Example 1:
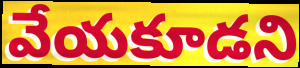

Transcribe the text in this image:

వేయకూడని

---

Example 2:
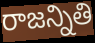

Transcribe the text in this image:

రాజన్నితి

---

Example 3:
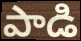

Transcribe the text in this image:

పాడి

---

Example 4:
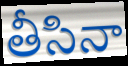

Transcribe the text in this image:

తీసినా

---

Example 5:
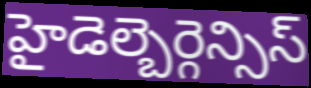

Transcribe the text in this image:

హైడెల్బెర్గెన్సిస్